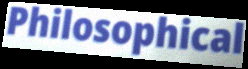
Philosophical